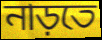
নাড়তে